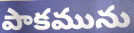
పాకమును